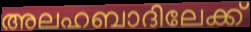
അലഹബാദിലേക്ക്